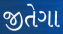
જીતેગા